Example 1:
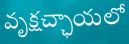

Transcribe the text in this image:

వృక్షచ్ఛాయలో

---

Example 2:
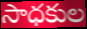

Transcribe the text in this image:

సాధకుల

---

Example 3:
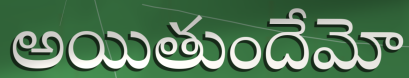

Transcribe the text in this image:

అయితుందేమో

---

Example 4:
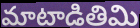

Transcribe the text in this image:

మాటాడితిమి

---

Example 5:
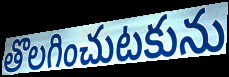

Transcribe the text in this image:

తొలగించుటకును